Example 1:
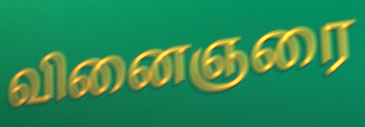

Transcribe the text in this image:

வினைஞரை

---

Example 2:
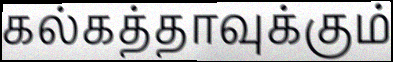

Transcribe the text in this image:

கல்கத்தாவுக்கும்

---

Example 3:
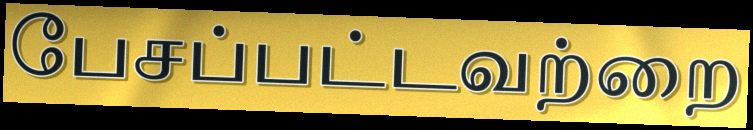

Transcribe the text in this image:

பேசப்பட்டவற்றை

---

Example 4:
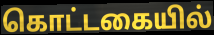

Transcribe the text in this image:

கொட்டகையில்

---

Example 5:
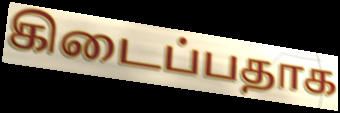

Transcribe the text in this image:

கிடைப்பதாக